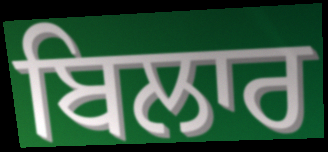
ਬਿਲਾਰ